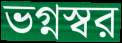
ভগ্নস্বর